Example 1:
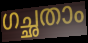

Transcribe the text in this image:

ഗച്ഛതാം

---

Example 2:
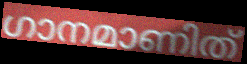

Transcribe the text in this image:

ഗാനമാണിത്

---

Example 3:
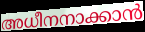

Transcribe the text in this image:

അധീനനാക്കാൻ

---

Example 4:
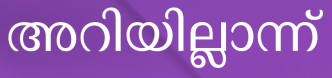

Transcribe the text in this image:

അറിയില്ലാന്ന്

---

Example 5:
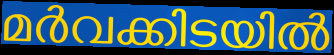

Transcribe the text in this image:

മർവക്കിടയിൽ